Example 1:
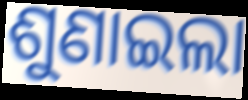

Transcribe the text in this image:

ଶୁଣାଇଲା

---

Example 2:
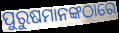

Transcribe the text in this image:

ପୁରୁଷମାନଙ୍କଠାରେ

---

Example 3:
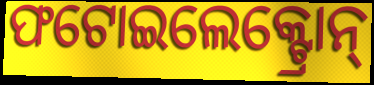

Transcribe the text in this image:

ଫଟୋଇଲେକ୍ଟ୍ରୋନ୍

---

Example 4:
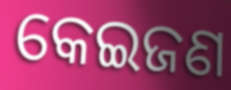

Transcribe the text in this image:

କେଇଜଣ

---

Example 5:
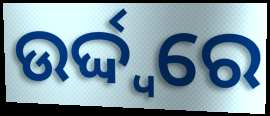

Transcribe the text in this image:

ଉର୍ଦ୍ଦ୍ୱରେ